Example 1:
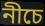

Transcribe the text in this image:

নীচে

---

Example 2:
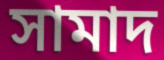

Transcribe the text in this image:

সামাদ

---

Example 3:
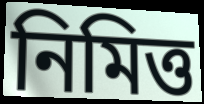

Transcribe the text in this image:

নিমিত্ত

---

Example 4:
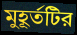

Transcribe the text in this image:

মুহূর্তটির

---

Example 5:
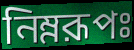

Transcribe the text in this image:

নিম্নরূপঃ